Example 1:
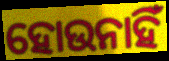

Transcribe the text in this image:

ହୋଉନାହିଁ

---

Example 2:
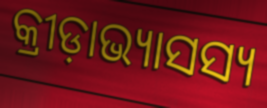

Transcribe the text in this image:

କ୍ରୀଡ଼ାଭ୍ୟାସସ୍ୟ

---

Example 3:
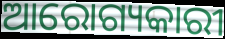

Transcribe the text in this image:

ଆରୋଗ୍ୟକାରୀ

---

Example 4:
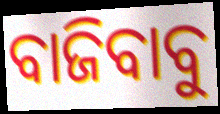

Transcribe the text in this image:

ବାଜିବାବୁ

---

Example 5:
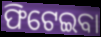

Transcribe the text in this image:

ଫିଟେଇବା